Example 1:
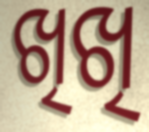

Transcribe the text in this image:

ଖିଖି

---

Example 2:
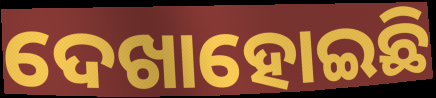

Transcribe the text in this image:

ଦେଖାହୋଇଛି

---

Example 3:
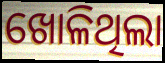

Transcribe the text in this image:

ଖୋଳିଥିଲା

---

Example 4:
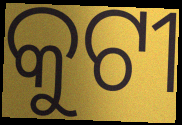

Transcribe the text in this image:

କୁଟୀ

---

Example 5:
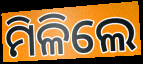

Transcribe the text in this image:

ମିଳିଲେ